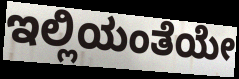
ಇಲ್ಲಿಯಂತೆಯೇ